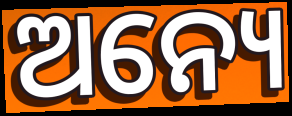
ଅନ୍ୟେ